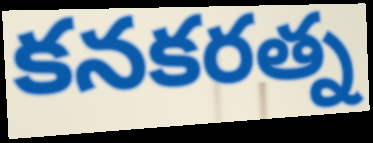
కనకరత్న